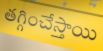
తగ్గించేస్తాయి